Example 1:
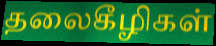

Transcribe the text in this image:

தலைகீழிகள்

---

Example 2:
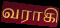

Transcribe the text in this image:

வராகி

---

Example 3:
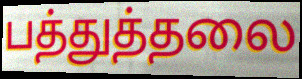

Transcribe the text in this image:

பத்துத்தலை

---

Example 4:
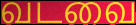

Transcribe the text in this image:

வடவை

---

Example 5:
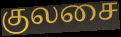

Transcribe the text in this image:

குலசை